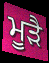
ਮੂੜੈ